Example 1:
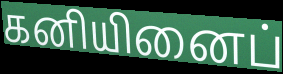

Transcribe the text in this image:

கனியினைப்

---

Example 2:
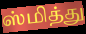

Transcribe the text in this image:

ஸ்மித்து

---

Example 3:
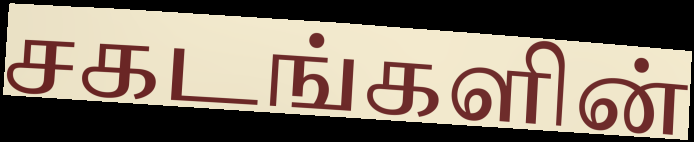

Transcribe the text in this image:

சகடங்களின்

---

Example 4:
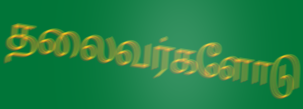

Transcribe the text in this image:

தலைவர்களோடு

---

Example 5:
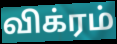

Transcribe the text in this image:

விக்ரம்